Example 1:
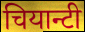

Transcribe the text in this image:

चियान्टी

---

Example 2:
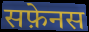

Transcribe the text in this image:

सफ़ेनस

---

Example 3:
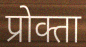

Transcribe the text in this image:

प्रोक्ता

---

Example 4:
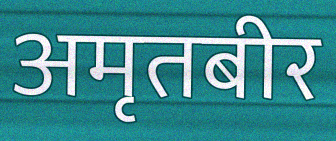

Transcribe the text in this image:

अमृतबीर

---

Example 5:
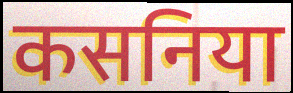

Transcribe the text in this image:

कसनिया